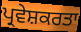
ਪ੍ਰਵੇਸ਼ਕਰਤਾ